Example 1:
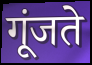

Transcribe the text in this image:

गूंजते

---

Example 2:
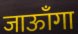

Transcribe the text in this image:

जाऊाँगा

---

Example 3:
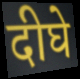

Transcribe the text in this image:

दीघे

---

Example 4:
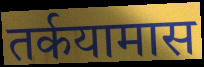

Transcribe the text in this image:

तर्कयामास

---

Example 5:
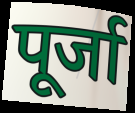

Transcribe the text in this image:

पूर्जा